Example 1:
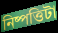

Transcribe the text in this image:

নিষ্পত্তিটা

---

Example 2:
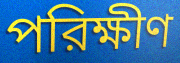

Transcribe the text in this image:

পরিক্ষীণ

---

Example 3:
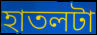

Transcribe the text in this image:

হাতলটা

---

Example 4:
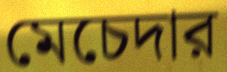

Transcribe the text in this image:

মেচেদার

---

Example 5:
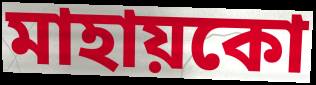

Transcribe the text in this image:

মাহায়কো